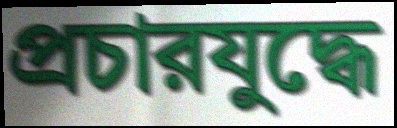
প্রচারযুদ্ধে